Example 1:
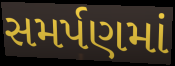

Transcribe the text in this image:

સમર્પણમાં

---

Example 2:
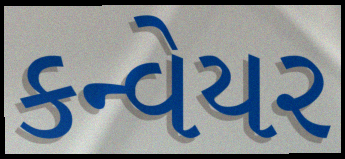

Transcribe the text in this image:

કન્વેયર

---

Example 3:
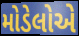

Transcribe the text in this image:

મોડેલોએ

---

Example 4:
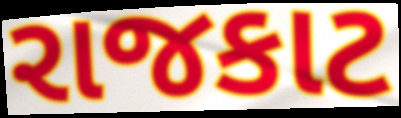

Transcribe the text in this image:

રાજકાટ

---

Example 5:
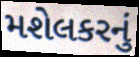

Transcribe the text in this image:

મશેલકરનું